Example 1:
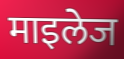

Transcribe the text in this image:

माइलेज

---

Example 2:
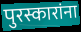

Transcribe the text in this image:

पुरस्कारांना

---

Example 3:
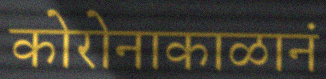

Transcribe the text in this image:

कोरोनाकाळानं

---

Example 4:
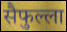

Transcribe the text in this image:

सैफुल्ला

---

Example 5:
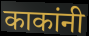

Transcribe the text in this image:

काकांनी